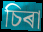
চিৰা